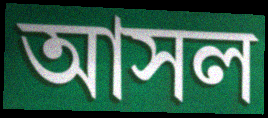
আসল